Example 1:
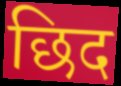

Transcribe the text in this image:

छिद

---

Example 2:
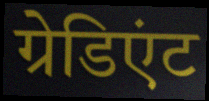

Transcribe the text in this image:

ग्रेडिएंट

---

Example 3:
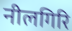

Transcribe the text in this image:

नीलगिरि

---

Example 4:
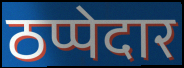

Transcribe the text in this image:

ठप्पेदार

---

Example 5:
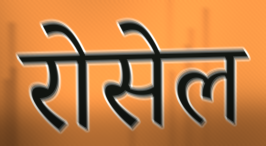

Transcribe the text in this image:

रोसेल